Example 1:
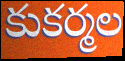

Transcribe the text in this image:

కుకర్మల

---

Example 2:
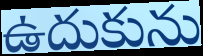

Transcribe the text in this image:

ఉదుకును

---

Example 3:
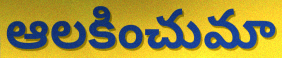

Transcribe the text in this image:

ఆలకించుమా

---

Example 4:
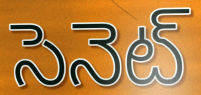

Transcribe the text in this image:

సెనెట్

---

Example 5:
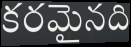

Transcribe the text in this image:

కరమైనది